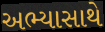
અભ્યાસાથે